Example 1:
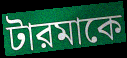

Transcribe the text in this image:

টারমাকে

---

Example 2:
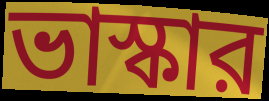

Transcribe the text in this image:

ভাস্কার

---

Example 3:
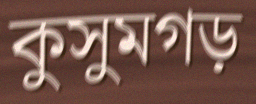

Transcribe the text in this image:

কুসুমগড়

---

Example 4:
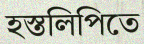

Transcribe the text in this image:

হস্তলিপিতে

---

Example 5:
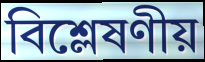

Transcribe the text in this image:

বিশ্লেষণীয়